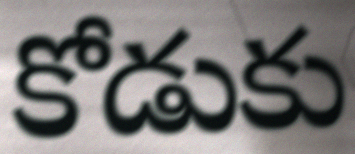
కోడుకు